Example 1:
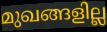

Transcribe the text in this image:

മുഖങ്ങളില്ല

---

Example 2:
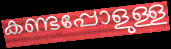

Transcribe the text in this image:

കണ്ടപ്പോളുള്ള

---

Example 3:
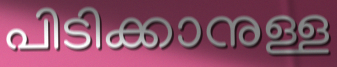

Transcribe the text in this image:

പിടിക്കാനുള്ള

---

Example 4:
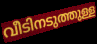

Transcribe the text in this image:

വീടിനടുത്തുള്ള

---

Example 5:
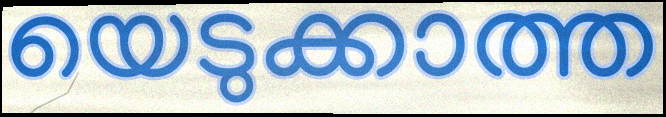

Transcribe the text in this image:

യെടുക്കാത്ത